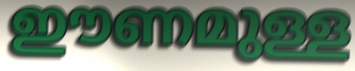
ഈണമുള്ള